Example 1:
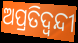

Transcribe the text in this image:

ଅପ୍ରତିଦ୍ବନ୍ଦୀ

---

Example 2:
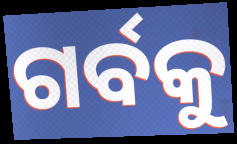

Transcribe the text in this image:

ଗର୍ବକୁ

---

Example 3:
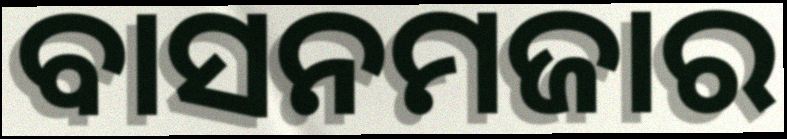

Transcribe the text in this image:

ବାସନମଜାର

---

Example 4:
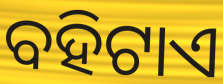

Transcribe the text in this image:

ବହିଟାଏ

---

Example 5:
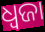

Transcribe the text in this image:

ଧ୍ୱଜା